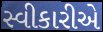
સ્વીકારીએ